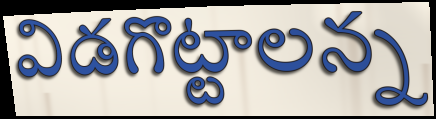
విడగొట్టాలన్న